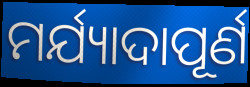
ମର୍ଯ୍ୟାଦାପୂର୍ଣ